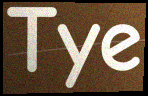
Tye